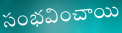
సంభవించాయి